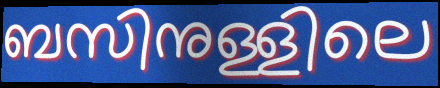
ബസിനുള്ളിലെ